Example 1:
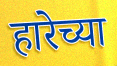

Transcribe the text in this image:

हारेच्या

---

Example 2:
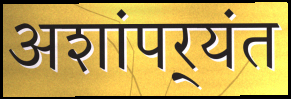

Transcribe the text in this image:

अशांपर्यंत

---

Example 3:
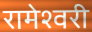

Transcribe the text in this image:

रामेश्वरी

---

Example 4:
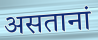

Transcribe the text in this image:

असतानां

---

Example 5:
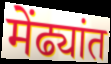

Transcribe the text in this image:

मेंढ्यांत